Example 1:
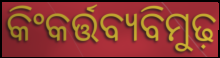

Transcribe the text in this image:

କିଂକର୍ତ୍ତବ୍ୟବିମୁଢ଼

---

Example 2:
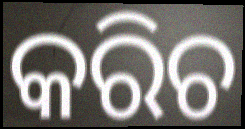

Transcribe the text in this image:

କରିଚ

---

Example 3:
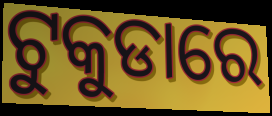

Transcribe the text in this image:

ଟୁକୁଡାରେ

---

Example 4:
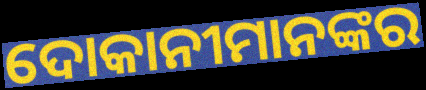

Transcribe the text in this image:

ଦୋକାନୀମାନଙ୍କର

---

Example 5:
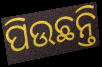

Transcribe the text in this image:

ପିଉଛନ୍ତି